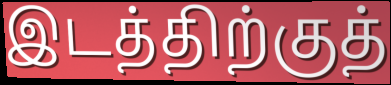
இடத்திற்குத்